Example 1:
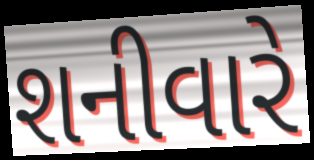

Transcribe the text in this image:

શનીવારે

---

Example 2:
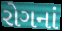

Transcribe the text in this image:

રોગનાં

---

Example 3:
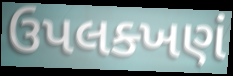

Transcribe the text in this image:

ઉપલક્ખણં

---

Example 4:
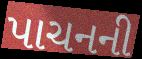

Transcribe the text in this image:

પાચનની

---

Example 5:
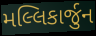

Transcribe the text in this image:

મલ્લિકાર્જુન